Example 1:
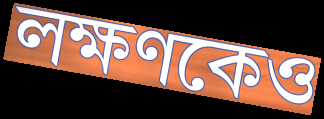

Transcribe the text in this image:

লক্ষণকেও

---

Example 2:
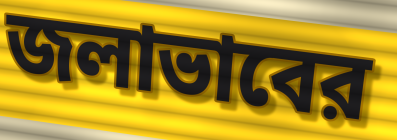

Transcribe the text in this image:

জলাভাবের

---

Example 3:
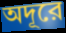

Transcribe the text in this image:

অদূরে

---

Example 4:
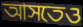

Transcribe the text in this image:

আসতেও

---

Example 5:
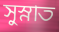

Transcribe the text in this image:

সুস্নাত